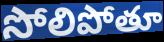
సోలిపోతూ